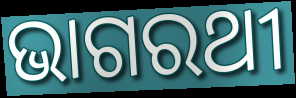
ଭାଗରଥୀ